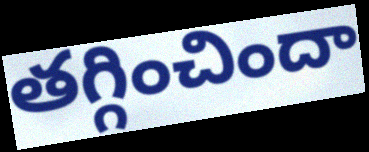
తగ్గించిందా